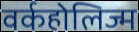
वर्कहोलिज्म